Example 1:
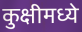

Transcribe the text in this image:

कुक्षीमध्ये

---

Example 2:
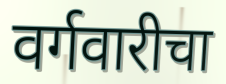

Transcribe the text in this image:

वर्गवारीचा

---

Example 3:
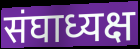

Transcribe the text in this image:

संघाध्यक्ष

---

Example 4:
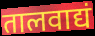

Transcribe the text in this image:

तालवाद्यं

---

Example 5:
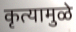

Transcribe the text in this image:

कृत्यामुळे